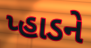
પ્હાડને